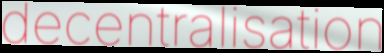
decentralisation